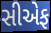
સીએફ